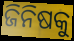
ଜିନିଷକୁ